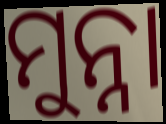
ମୁନ୍ନା